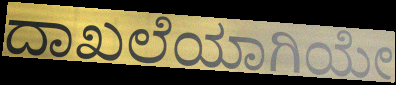
ದಾಖಲೆಯಾಗಿಯೇ